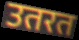
उतरत